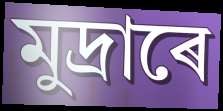
মুদ্ৰাৰে